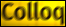
Colloq